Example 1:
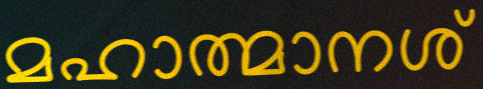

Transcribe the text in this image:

മഹാത്മാനശ്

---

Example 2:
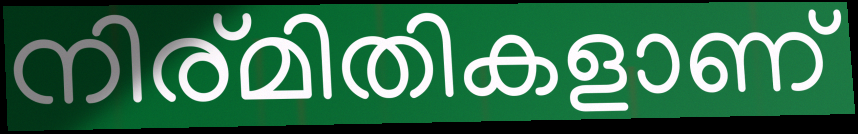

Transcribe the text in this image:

നിര്മിതികളാണ്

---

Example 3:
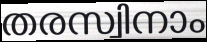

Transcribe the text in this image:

തരസ്വിനാം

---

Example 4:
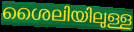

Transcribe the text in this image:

ശൈലിയിലുള്ള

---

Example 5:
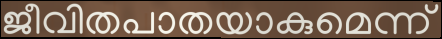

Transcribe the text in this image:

ജീവിതപാതയാകുമെന്ന്